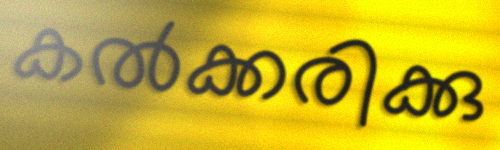
കൽക്കരിക്കു